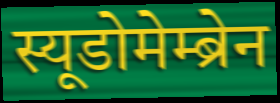
स्यूडोमेम्ब्रेन